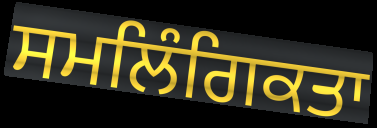
ਸਮਲਿੰਗਿਕਤਾ